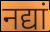
नद्यां